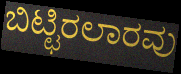
ಬಿಟ್ಟಿರಲಾರವು